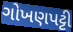
ગોખણપટ્ટી